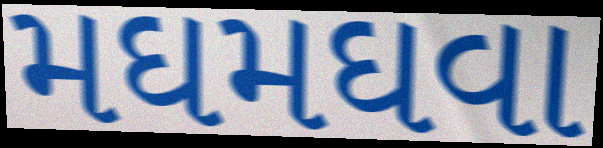
મઘમઘવા